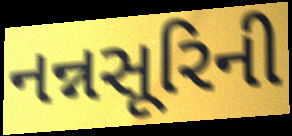
નન્નસૂરિની